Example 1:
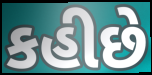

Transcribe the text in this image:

કહીછે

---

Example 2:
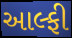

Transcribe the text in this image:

આલ્ફી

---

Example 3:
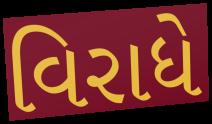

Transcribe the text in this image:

વિરાધે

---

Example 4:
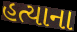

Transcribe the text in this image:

હત્યાના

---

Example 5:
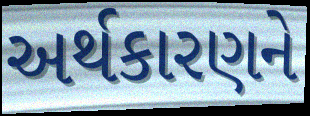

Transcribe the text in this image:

અર્થકારણને